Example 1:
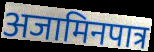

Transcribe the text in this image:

अजामिनपात्र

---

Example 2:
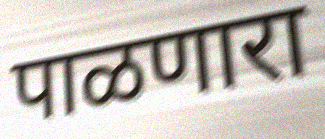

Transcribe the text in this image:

पाळणारा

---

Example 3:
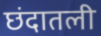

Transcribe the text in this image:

छंदातली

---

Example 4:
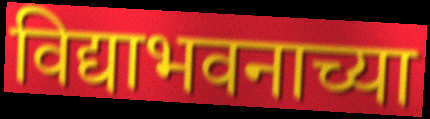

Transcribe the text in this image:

विद्याभवनाच्या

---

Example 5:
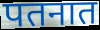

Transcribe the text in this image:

पतनात